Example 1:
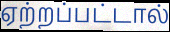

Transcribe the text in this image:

ஏற்றப்பட்டால்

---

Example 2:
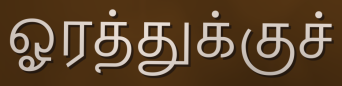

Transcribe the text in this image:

ஓரத்துக்குச்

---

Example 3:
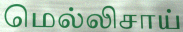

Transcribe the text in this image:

மெல்லிசாய்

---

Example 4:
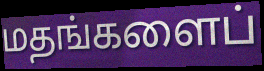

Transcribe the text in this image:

மதங்களைப்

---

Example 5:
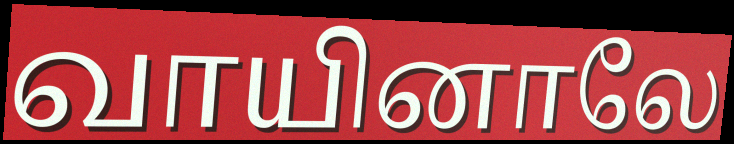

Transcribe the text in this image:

வாயினாலே